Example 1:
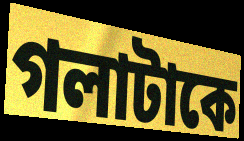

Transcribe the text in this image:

গলাটাকে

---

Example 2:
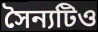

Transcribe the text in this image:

সৈন্যটিও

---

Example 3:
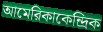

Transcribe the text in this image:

আমেরিকাকেন্দ্রিক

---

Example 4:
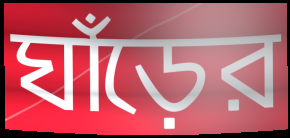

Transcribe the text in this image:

ঘাঁড়ের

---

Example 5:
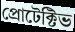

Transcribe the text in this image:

প্রোটেক্টিভ